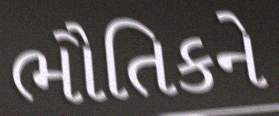
ભૌતિકને